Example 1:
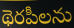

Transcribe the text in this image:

థెరపీలను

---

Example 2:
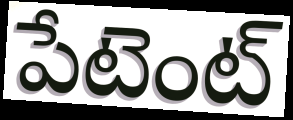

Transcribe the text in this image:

పేటెంట్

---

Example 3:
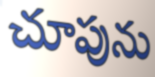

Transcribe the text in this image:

చూపును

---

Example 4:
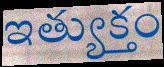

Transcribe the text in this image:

ఇత్యుక్తం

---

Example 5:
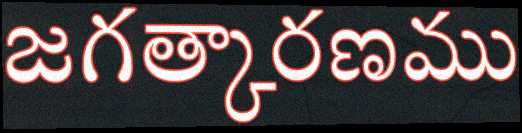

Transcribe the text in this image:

జగత్కారణము